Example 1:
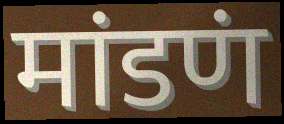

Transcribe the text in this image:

मांडणं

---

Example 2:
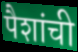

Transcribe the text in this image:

पैशांची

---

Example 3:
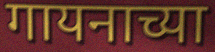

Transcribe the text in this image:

गायनाच्या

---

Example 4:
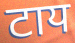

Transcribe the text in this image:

टाय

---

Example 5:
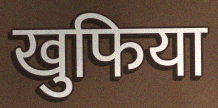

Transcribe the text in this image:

खुफिया